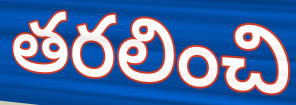
తరలించి